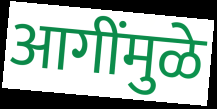
आगींमुळे